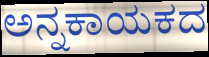
ಅನ್ನಕಾಯಕದ